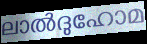
ലാൽദുഹോമ